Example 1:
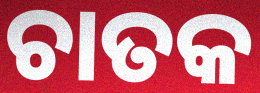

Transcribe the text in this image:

ଚାତକ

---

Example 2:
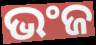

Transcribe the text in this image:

ଭଂଜ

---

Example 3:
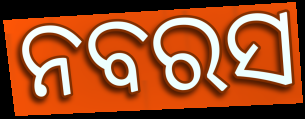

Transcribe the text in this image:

ନବରସ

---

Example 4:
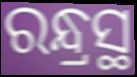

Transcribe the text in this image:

ରନ୍ଧ୍ରସ୍ଥ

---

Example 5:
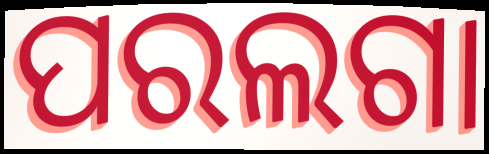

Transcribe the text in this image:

ପରଲଗା